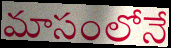
మాసంలోనే